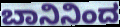
ಬಾನಿನಿಂದ